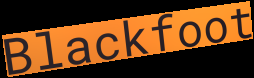
Blackfoot